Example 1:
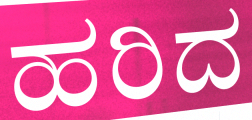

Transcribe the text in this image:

ಹರಿದ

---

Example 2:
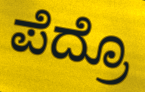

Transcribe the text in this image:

ಪೆದ್ರೊ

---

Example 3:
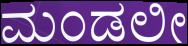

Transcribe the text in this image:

ಮಂಡಲೀ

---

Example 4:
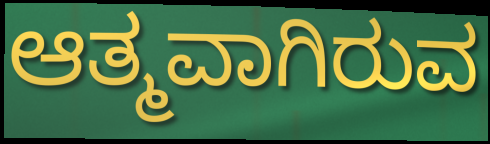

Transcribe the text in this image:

ಆತ್ಮವಾಗಿರುವ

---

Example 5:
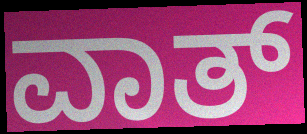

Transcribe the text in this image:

ವಾತ್